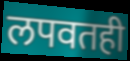
लपवतही